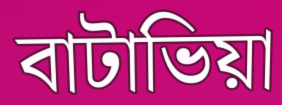
বাটাভিয়া